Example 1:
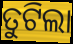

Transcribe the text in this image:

ତୁଟିଲା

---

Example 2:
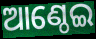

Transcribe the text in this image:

ଆଣ୍ଠେଇ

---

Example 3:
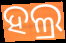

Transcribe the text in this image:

ହଲ୍ର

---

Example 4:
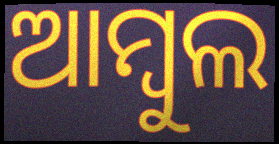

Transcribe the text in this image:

ଆମ୍ବୁଲ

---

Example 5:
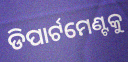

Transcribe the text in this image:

ଡିପାର୍ଟମେଣ୍ଟକୁ